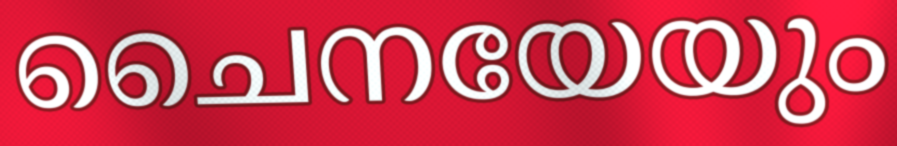
ചൈനയേയും